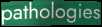
pathologies